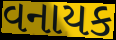
વનાયક